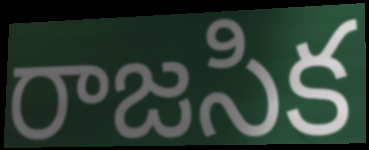
రాజసిక